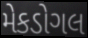
મેકડોગલ